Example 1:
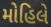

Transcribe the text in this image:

મોહિલે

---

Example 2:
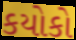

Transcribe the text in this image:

કયોકો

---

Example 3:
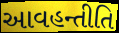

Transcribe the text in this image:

આવહન્તીતિ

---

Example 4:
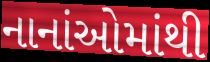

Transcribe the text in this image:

નાનાંઓમાંથી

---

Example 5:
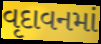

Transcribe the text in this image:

વૃદાવનમાં